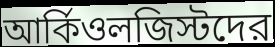
আর্কিওলজিস্টদের